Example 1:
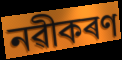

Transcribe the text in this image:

নৱীকৰণ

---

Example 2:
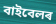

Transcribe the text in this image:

বাইবেলৰ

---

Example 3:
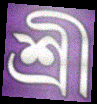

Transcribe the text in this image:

শ্ৰী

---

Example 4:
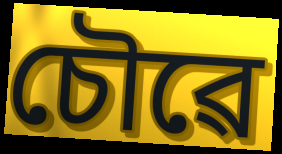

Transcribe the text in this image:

চৌৱে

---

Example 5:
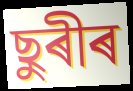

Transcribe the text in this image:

ছুৰীৰ